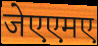
जेएएमए